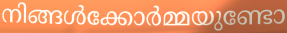
നിങ്ങൾക്കോർമ്മയുണ്ടോ